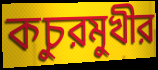
কচুরমুখীর